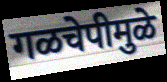
गळचेपीमुळे